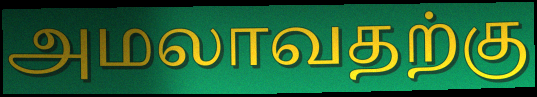
அமலாவதற்கு